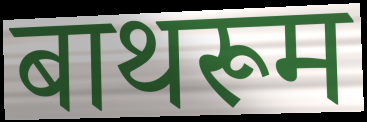
बाथरूम